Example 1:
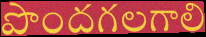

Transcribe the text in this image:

పొందగలగాలి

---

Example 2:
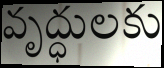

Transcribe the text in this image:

వృద్ధులకు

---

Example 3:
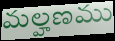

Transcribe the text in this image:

మల్హణము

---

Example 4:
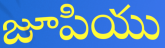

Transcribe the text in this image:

జూపియు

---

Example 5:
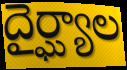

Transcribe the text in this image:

దైర్ఘ్యాల